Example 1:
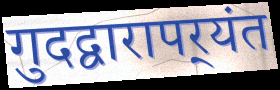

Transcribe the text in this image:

गुदद्वारापर्यंत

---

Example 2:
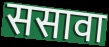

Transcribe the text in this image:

ससावा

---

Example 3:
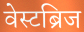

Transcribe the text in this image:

वेस्टब्रिज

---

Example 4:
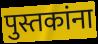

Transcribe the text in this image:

पुस्तकांना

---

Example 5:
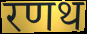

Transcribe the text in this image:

रणथ